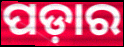
ପଡ଼ାର